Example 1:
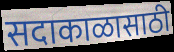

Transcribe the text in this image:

सदाकाळासाठी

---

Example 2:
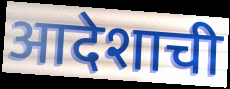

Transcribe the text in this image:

आदेशाची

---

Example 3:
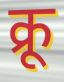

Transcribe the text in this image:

क्रू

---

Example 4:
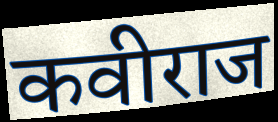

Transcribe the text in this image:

कवीराज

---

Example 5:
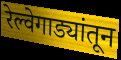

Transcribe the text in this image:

रेल्वेगाड्यांतून